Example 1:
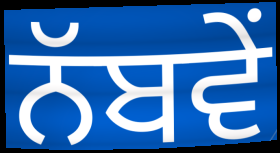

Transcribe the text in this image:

ਨੱਬਵੇਂ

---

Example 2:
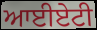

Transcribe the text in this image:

ਆਈਏਟੀ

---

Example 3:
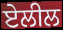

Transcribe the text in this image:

ਏਲੀਲ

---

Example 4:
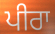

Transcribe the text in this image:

ਪੀਰਾ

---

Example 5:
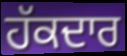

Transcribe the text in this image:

ਹੱਕਦਾਰ